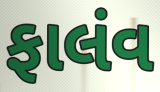
ફાલંવ